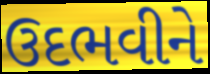
ઉદભવીને